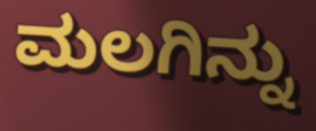
ಮಲಗಿನ್ನು